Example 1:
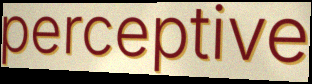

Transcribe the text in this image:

perceptive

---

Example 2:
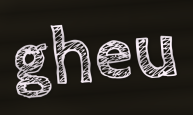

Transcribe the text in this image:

gheu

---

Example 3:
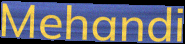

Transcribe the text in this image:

Mehandi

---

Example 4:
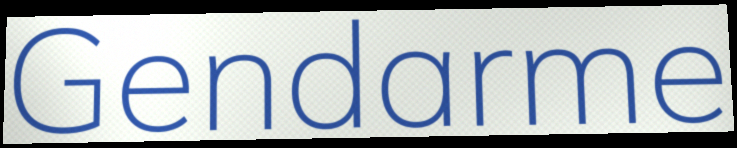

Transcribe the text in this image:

Gendarme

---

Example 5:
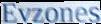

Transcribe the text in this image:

Evzones